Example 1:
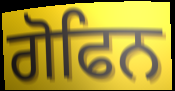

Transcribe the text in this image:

ਗੋਫਿਨ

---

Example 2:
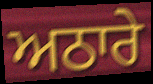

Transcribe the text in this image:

ਅਠਾਰੇ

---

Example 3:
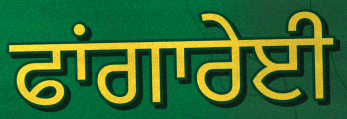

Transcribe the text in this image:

ਫਾਂਗਾਰੇਈ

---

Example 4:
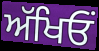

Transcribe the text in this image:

ਅੱਖਿਓਂ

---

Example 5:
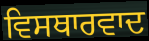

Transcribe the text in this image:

ਵਿਸਥਾਰਵਾਦ